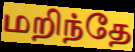
மறிந்தே